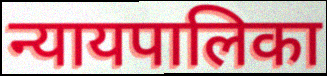
न्यायपालिका